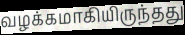
வழக்கமாகியிருந்தது